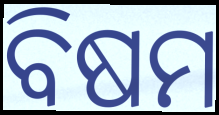
ବିଷମ